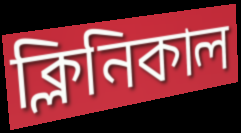
ক্লিনিকাল